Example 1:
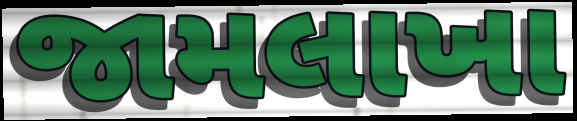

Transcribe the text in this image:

જામલાખા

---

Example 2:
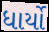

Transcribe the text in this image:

ધાર્યો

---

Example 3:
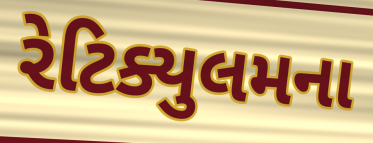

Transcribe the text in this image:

રેટિક્યુલમના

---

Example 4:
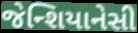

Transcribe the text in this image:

જેન્શિયાનેસી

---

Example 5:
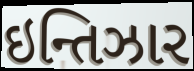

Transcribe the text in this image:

ઇન્તિઝાર